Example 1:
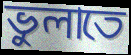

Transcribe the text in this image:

ভুলাতে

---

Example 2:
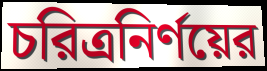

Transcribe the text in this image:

চরিত্রনির্ণয়ের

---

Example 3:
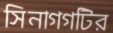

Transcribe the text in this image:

সিনাগগটির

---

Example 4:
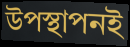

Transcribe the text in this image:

উপস্থাপনই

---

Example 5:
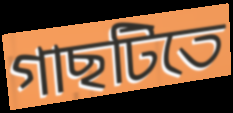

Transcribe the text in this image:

গাছটিতে